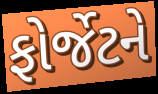
ફોર્જેટને